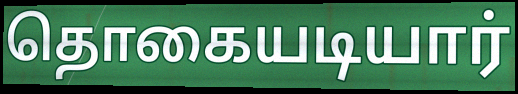
தொகையடியார்